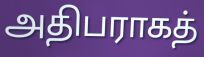
அதிபராகத்